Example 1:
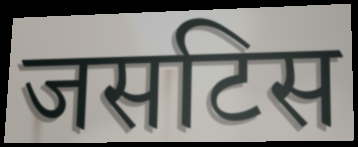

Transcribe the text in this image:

जसटिस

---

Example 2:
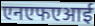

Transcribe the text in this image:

एनएफएआई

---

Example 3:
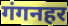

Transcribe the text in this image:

गंगनहर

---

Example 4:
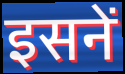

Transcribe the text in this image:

इसनें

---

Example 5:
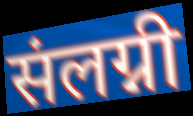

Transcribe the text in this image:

संलग्नी